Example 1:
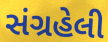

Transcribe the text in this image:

સંગ્રહેલી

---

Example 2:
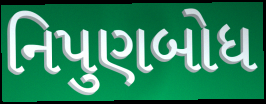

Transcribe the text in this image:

નિપુણબોધ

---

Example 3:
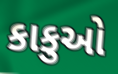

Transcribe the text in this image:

કાકુઓ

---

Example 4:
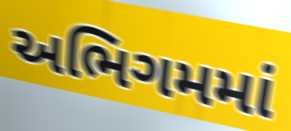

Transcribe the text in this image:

અભિગમમાં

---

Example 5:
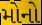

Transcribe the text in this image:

મોનો